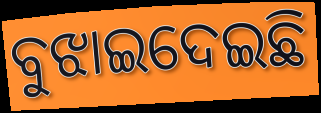
ବୁଝାଇଦେଇଛି